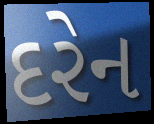
દરેન